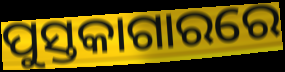
ପୁସ୍ତକାଗାରରେ